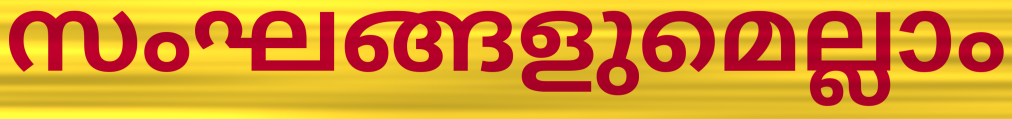
സംഘങ്ങളുമെല്ലാം